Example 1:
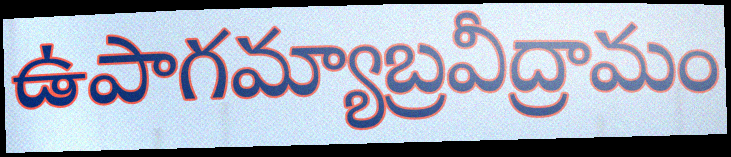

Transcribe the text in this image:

ఉపాగమ్యాబ్రవీద్రామం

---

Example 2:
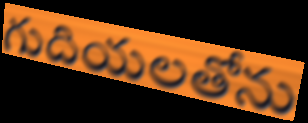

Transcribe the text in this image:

గుదియలతోను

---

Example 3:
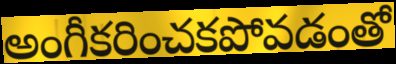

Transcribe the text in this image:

అంగీకరించకపోవడంతో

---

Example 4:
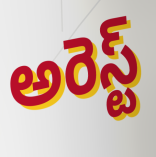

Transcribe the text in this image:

అరెస్ట్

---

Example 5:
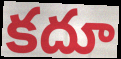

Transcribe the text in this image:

కదూ